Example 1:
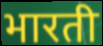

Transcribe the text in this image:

भारती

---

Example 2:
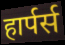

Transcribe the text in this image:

हार्पर्स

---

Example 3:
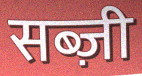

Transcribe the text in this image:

सब्ज़ी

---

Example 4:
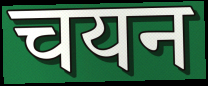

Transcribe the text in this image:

चयन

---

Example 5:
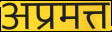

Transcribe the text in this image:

अप्रमत्त